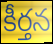
కీర్తన